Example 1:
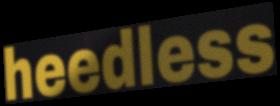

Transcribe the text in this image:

heedless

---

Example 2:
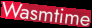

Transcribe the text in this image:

Wasmtime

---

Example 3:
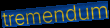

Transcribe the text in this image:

tremendum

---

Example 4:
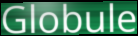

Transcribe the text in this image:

Globule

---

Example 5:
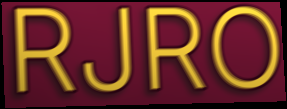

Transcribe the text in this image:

RJRO